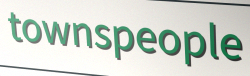
townspeople